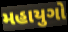
મહાયુગો